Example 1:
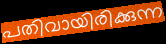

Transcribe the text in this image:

പതിവായിരിക്കുന്ന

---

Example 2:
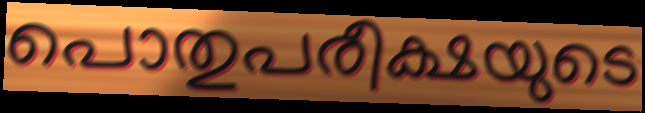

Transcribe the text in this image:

പൊതുപരീക്ഷയുടെ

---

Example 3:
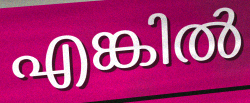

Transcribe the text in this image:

എങ്കിൽ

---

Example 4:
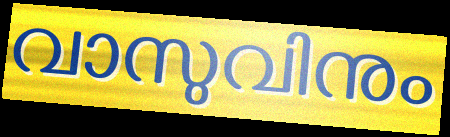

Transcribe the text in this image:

വാസുവിനും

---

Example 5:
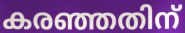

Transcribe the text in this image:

കരഞ്ഞതിന്